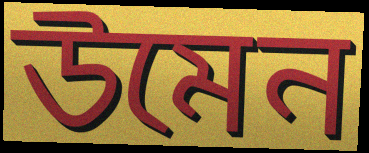
উমেন